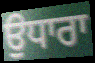
ਉਧਾਰਾ